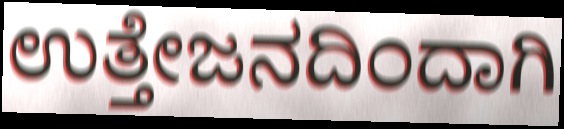
ಉತ್ತೇಜನದಿಂದಾಗಿ